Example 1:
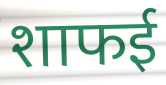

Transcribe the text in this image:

शाफई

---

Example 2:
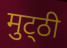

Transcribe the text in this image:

मुट्‌ठी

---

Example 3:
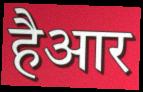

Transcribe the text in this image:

हैआर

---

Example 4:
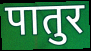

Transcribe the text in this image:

पातुर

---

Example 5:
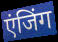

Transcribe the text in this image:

एंजिंग